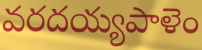
వరదయ్యపాళెం